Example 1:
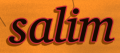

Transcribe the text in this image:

salim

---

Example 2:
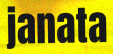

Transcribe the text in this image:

janata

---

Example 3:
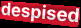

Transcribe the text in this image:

despised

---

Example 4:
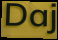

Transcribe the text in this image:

Daj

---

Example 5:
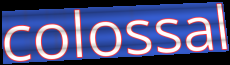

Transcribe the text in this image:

colossal